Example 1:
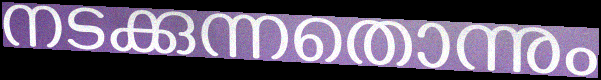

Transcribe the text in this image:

നടക്കുന്നതൊന്നും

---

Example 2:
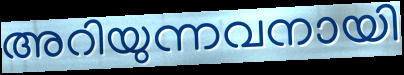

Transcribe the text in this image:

അറിയുന്നവനായി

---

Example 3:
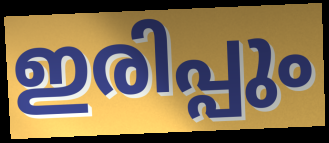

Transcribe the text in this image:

ഇരിപ്പും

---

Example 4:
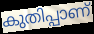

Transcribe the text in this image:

കുതിപ്പാണ്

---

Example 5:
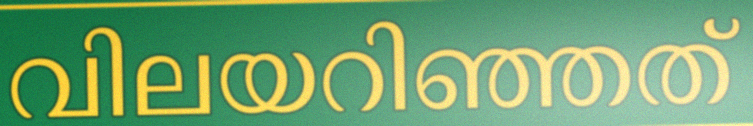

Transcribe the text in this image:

വിലയറിഞ്ഞത്